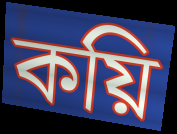
কয়ি